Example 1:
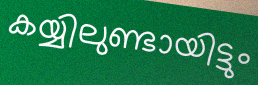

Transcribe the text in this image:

കയ്യിലുണ്ടായിട്ടും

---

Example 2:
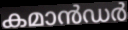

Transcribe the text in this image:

കമാൻഡർ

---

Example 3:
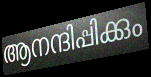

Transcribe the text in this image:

ആനന്ദിപ്പിക്കും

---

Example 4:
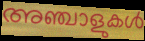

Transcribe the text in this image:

അഞ്ചാളുകൾ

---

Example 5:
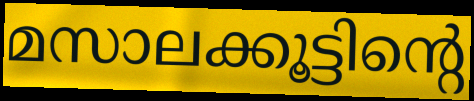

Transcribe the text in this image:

മസാലക്കൂട്ടിന്റെ